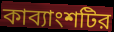
কাব্যাংশটির